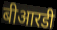
बीआरडी